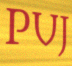
PUJ